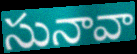
సునావా